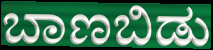
ಬಾಣಬಿಡು